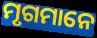
ମୃଗମାନେ